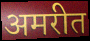
अमरीत